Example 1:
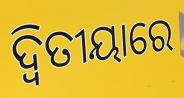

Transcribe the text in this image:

ଦ୍ଵିତୀୟାରେ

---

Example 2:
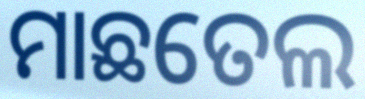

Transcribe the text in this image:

ମାଛତେଲ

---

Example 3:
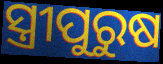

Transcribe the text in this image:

ସ୍ତ୍ରୀପୁରୁଷ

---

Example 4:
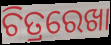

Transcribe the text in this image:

ଚିତ୍ରରେଖା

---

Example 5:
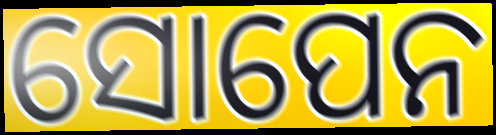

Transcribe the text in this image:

ସୋପେନ